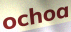
ochoa